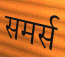
समर्स